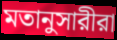
মতানুসারীরা